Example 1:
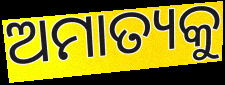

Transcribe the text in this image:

ଅମାତ୍ୟକୁ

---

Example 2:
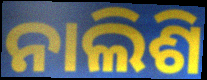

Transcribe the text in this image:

ନାଲିଶି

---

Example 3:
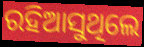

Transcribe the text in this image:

ରହିଆସୁଥିଲେ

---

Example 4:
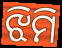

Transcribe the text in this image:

ଝିମି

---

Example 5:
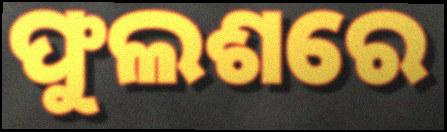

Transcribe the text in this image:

ଫୁଲଶରେ